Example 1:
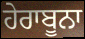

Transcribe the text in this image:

ਹੇਰਾਬੂਨਾ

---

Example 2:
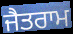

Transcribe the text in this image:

ਜੈਤਰਾਮ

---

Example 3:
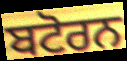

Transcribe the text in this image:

ਬਟੋਰਨ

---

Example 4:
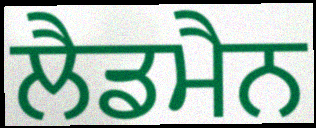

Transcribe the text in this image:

ਲੈਡਮੈਨ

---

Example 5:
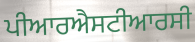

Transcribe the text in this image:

ਪੀਆਰਐਸਟੀਆਰਸੀ